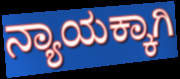
ನ್ಯಾಯಕ್ಕಾಗಿ